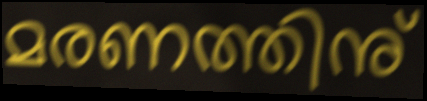
മരണത്തിനു്